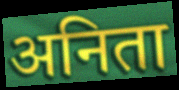
अनिता